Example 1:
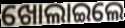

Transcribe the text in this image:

ଖୋଲାଇଲେ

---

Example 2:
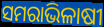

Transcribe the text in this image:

ସମରାଭିଳାଷୀ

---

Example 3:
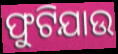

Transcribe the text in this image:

ଫୁଟିଯାଉ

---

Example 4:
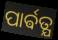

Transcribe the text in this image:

ପାର୍ଵତ୍ଯ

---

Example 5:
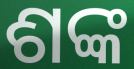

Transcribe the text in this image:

ଶଙ୍କ